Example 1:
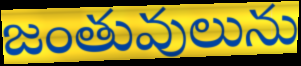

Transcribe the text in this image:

జంతువులును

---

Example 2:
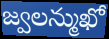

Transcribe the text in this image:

జ్వలన్ముఖో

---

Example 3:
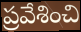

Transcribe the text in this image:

ప్రవేశించి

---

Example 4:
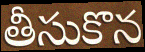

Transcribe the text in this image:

తీసుకొన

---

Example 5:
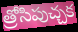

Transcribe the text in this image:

త్రోసిపుచ్చక